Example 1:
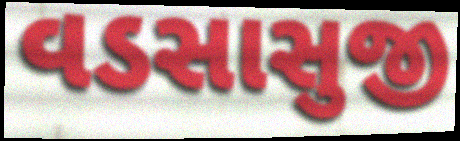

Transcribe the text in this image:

વડસાસુજી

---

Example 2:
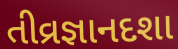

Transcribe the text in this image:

તીવ્રજ્ઞાનદશા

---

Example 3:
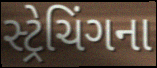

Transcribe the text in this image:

સ્ટ્રેચિંગના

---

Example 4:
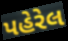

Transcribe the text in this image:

પહેરેલ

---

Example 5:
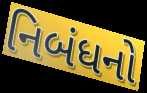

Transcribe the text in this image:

નિબંધનો